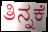
ತಿನ್ನಕೆ